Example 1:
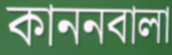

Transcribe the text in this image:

কাননবালা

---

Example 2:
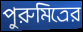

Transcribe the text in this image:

পুরুমিত্রের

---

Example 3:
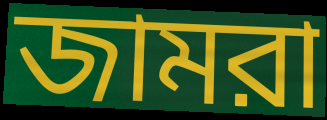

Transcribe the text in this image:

জামরা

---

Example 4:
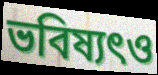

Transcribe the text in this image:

ভবিষ্যৎও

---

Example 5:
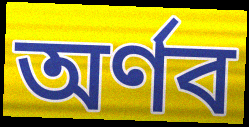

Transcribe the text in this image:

অর্ণব